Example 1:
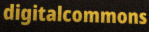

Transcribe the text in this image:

digitalcommons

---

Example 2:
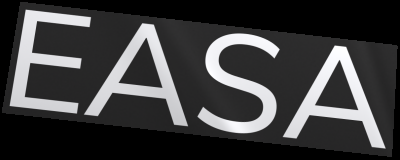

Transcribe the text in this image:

EASA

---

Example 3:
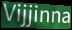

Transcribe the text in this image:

Vijjinna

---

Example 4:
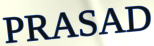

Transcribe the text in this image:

PRASAD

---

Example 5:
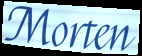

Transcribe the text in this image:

Morten